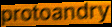
protoandry